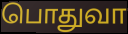
பொதுவா